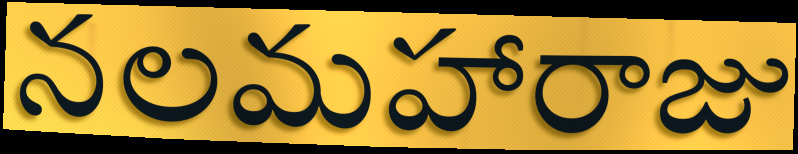
నలమహారాజు